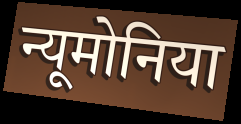
न्यूमोनिया